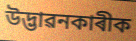
উদ্ভাৱনকাৰীক